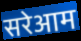
सरेआम